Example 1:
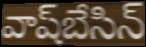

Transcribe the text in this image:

వాష్‌బేసిన్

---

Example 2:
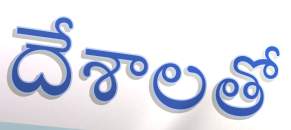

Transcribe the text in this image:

దేశాలతో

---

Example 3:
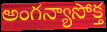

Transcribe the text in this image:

అంగన్యాసోక్త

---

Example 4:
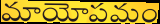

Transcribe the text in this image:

మాయోపమం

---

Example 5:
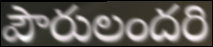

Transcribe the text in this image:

పౌరులందరి